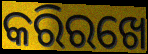
କରିରଖେ